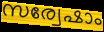
സര്വേഷാം